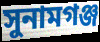
সুনামগঞ্জ